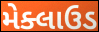
મેક્લાઉડ